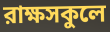
রাক্ষসকুলে